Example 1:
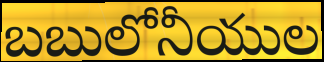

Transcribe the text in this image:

బబులోనీయుల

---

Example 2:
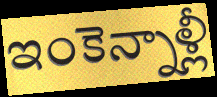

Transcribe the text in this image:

ఇంకెన్నాళ్లీ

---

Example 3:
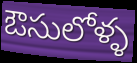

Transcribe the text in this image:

ఔసులోళ్ళ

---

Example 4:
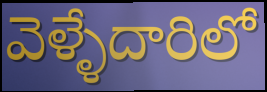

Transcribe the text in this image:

వెళ్ళేదారిలో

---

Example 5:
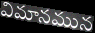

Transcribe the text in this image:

విమానమున